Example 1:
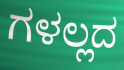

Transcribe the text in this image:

ಗಳಲ್ಲದ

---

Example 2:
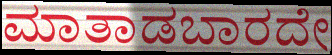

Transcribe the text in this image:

ಮಾತಾಡಬಾರದೇ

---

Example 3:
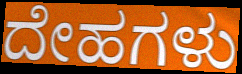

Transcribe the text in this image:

ದೇಹಗಳು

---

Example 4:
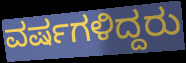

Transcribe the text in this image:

ವರ್ಷಗಳಿದ್ದರು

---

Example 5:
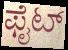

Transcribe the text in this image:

ಫೈಟ್